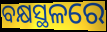
ବକ୍ଷସ୍ଥଳରେ